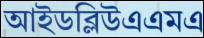
আইডব্লিউএএমএ